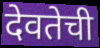
देवतेची